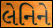
લેનિને